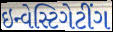
ઇન્વેસ્ટિગેટીંગ